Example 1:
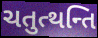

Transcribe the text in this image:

ચતુત્થન્તિ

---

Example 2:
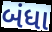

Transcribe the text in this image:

બંધા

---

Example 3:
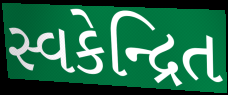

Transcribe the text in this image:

સ્વકેન્દ્રિત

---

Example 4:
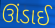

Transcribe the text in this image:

ઊંડાઈ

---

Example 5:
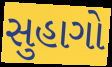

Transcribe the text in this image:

સુહાગો